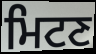
ਮਿਟਣ